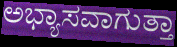
ಅಭ್ಯಾಸವಾಗುತ್ತಾ